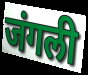
जंगली